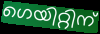
ഗെയിറ്റിന്